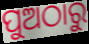
ପୁଅଠାରୁ